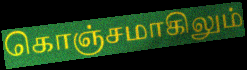
கொஞ்சமாகிலும்